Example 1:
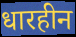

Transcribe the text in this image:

धारहीन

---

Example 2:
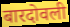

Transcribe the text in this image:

बारदोवली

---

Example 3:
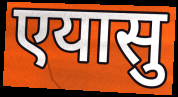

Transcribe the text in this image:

एयासु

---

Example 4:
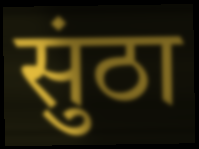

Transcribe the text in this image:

सुंठा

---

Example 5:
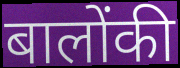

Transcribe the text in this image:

बालोंकी